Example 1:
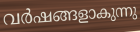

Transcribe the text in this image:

വർഷങ്ങളാകുന്നു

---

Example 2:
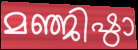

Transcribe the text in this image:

മഞ്ജിഷ്ഠാ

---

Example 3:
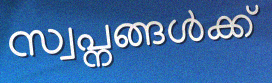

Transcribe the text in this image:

സ്വപ്നങ്ങൾക്ക്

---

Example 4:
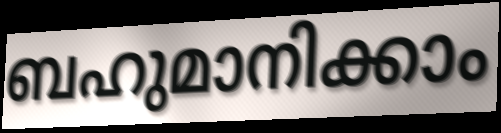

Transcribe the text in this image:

ബഹുമാനിക്കാം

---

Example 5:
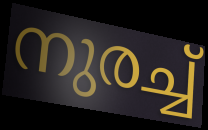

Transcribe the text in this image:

നുരച്ച്